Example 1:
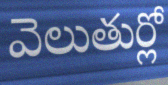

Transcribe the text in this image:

వెలుతుర్లో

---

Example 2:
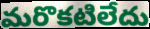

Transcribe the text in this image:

మరొకటిలేదు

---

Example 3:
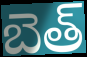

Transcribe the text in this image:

బెత్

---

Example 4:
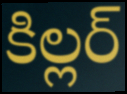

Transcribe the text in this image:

కిల్లర్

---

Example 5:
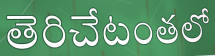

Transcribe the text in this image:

తెరిచేటంతలో